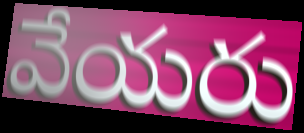
వేయరు